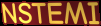
NSTEMI